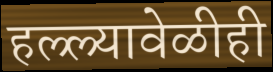
हल्ल्यावेळीही